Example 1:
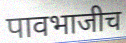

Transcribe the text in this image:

पावभाजीच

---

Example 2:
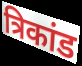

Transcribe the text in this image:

त्रिकांड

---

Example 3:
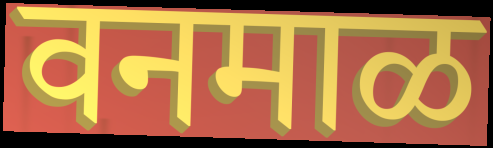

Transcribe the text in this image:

वनमाळ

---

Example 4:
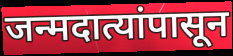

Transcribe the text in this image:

जन्मदात्यांपासून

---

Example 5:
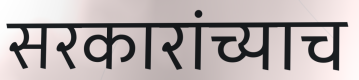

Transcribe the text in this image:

सरकारांच्याच